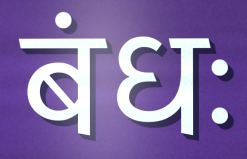
बंधः